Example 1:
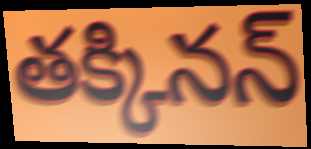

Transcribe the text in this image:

తక్కినన్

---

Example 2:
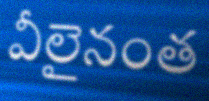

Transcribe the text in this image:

వీలైనంత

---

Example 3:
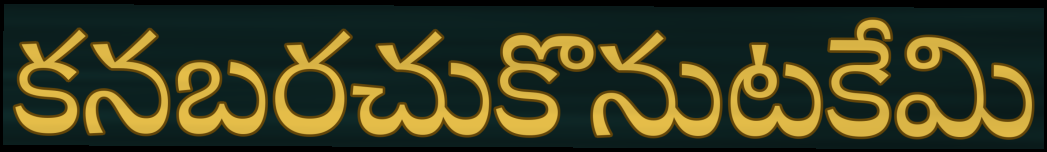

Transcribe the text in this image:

కనబరచుకొనుటకేమి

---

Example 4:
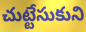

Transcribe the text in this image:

చుట్టేసుకుని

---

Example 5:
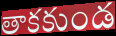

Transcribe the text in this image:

తాకకుండ